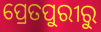
ପ୍ରେତପୁରୀରୁ